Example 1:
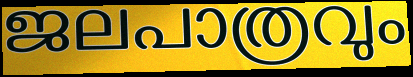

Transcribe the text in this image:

ജലപാത്രവും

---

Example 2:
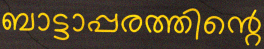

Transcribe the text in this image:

ബാട്ടാപ്പരത്തിന്റെ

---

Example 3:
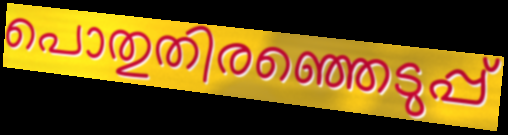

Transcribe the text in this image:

പൊതുതിരഞ്ഞെടുപ്പ്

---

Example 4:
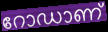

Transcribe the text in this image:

റോഡാണ്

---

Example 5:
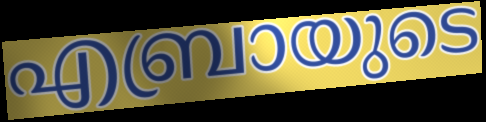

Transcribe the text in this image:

എബ്രായുടെ